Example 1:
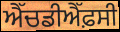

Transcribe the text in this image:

ਐੱਚਡੀਐੱਫ਼ਸੀ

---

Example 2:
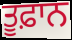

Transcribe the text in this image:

ਤੂਫ਼ਾਨ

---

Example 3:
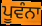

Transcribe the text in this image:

ਪੂਵੰਨਾ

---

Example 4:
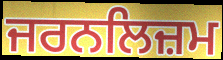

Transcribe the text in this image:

ਜਰਨਲਿਜ਼ਮ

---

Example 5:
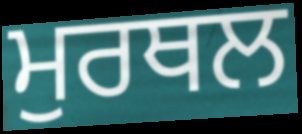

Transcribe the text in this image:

ਮੁਰਥਲ